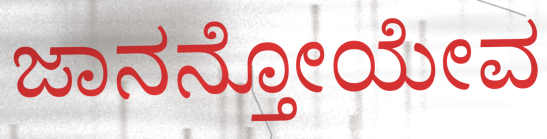
ಜಾನನ್ತೋಯೇವ